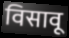
विसावू